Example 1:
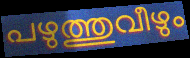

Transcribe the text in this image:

പഴുത്തുവീഴും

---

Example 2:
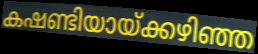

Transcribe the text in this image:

കഷണ്ടിയായ്ക്കഴിഞ്ഞ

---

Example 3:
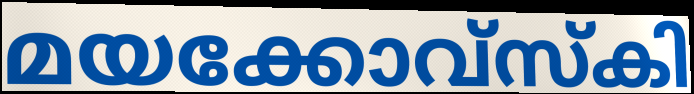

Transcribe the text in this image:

മയക്കോവ്സ്കി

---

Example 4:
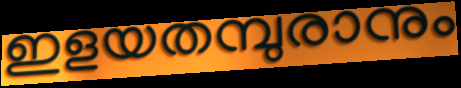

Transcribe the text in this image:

ഇളയതമ്പുരാനും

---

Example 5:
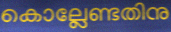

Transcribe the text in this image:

കൊല്ലേണ്ടതിനു